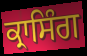
ਕ੍ਰਾਸਿੰਗ